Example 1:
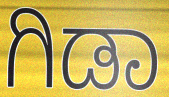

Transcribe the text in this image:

ಗಿಡಾ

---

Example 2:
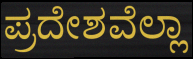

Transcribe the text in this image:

ಪ್ರದೇಶವೆಲ್ಲಾ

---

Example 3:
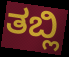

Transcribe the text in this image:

ತಬ್ಲಿ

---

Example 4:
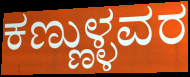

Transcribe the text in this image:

ಕಣ್ಣುಳ್ಳವರ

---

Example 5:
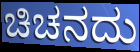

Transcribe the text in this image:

ಚಿಚನದು